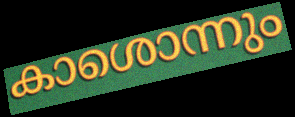
കാശൊന്നും